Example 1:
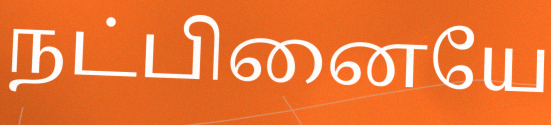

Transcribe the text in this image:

நட்பினையே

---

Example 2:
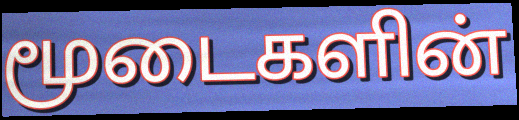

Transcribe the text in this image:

மூடைகளின்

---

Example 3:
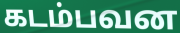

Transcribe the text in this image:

கடம்பவன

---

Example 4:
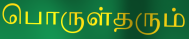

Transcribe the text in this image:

பொருள்தரும்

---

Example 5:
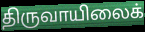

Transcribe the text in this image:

திருவாயிலைக்